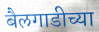
बैलगाडीच्या